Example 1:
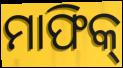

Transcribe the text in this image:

ମାଫିକ୍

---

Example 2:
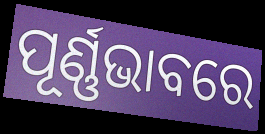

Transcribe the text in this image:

ପୂର୍ଣ୍ଣଭାବରେ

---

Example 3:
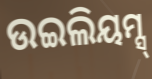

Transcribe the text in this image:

ଉଇଲିୟମ୍ସ୍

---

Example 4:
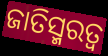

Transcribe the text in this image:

ଜାତିସ୍ମରତ୍ୱ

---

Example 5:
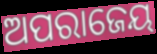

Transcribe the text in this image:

ଅପରାଜେୟ